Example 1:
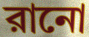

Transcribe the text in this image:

রানো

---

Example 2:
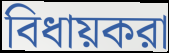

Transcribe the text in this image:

বিধায়করা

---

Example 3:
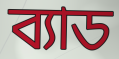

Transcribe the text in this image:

ব্যাড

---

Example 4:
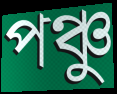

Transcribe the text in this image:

পঞ্চু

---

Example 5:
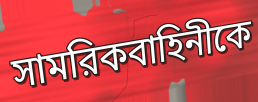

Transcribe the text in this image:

সামরিকবাহিনীকে